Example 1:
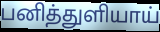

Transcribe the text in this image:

பனித்துளியாய்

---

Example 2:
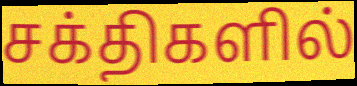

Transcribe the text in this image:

சக்திகளில்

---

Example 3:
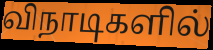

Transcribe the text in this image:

விநாடிகளில்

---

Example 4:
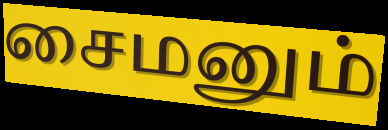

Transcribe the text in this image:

சைமனும்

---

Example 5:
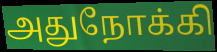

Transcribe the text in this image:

அதுநோக்கி